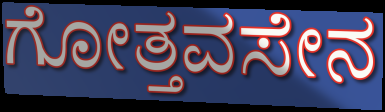
ಗೋತ್ತವಸೇನ